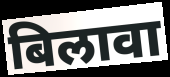
बिलावा